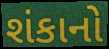
શંકાનો